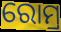
ରୋମ୍ର